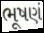
ભૂષણં